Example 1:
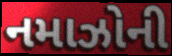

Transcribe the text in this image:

નમાઝોની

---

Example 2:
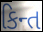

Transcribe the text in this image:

કિન્ત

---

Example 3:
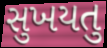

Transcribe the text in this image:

સુખયતુ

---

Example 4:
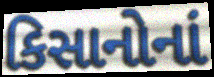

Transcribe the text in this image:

કિસાનોનાં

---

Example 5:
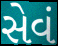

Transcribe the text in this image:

સેવં